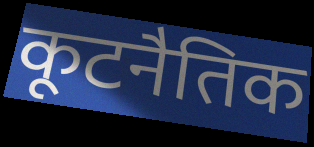
कूटनैतिक